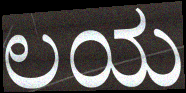
ಲಯ